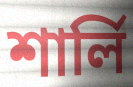
শার্লি